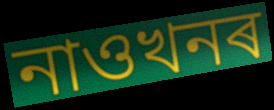
নাওখনৰ